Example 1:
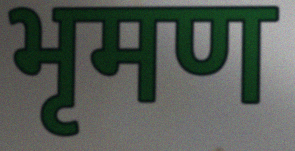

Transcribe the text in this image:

भृमण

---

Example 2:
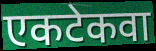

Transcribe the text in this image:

एकटेकवा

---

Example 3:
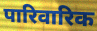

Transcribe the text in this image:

पारिवारिक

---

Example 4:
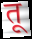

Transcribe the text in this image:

तू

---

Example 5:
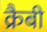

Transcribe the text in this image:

क्रैबी